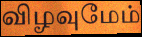
விழவுமேம்